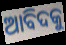
ଆବିଦକୁ